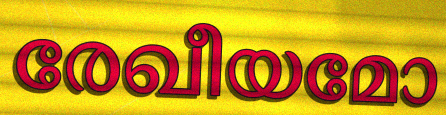
രേഖീയമോ